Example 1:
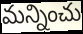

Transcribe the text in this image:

మన్నించు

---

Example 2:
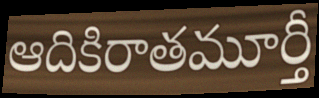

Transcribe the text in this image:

ఆదికిరాతమూర్తీ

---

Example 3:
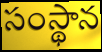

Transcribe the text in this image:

సంస్థాన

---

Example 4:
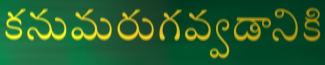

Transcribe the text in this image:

కనుమరుగవ్వడానికి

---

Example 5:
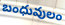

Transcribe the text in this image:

బంధువులం